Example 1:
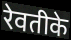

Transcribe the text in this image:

रेवतीके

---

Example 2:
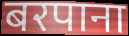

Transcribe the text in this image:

बरपाना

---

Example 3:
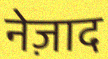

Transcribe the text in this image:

नेज़ाद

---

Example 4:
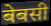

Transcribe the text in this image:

बेबसी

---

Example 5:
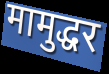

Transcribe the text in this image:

मामुद्धर